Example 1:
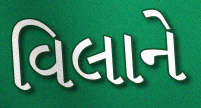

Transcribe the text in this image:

વિલાને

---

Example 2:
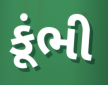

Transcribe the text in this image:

કૂંભી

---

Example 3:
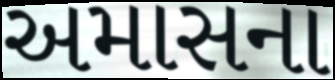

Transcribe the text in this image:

અમાસના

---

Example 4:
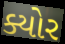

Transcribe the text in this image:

ક્યોર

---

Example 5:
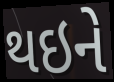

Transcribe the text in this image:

થઇને